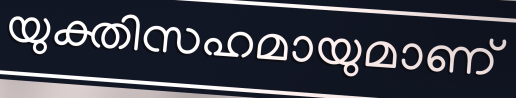
യുക്തിസഹമായുമാണ്